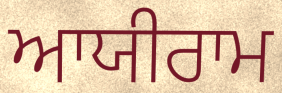
ਆਯੀਰਾਮ